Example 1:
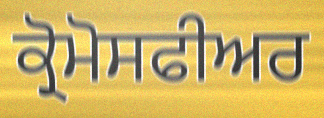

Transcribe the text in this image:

ਕ੍ਰੋਮੋਸਫੀਅਰ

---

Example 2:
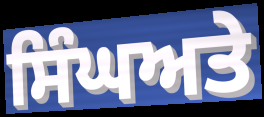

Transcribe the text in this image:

ਸਿੰਘਅਤੇ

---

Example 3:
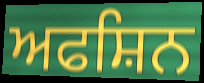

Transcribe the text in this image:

ਅਫਸ਼ਿਨ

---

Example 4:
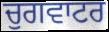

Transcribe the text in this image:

ਚੁਗਵਾਟਰ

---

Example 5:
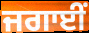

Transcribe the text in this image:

ਜਗਾਈਂ